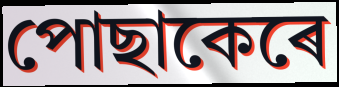
পোছাকেৰে